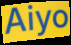
Aiyo